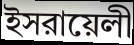
ইসরায়েলী